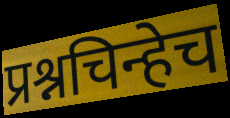
प्रश्नचिन्हेच